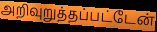
அறிவுறுத்தப்பட்டேன்